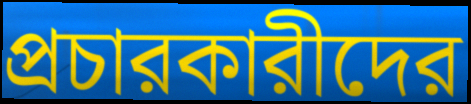
প্রচারকারীদের